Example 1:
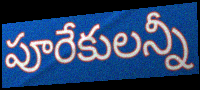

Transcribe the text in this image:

పూరేకులన్నీ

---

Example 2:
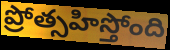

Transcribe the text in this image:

ప్రోత్సహిస్తోంది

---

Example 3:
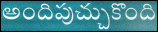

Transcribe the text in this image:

అందిపుచ్చుకొంది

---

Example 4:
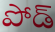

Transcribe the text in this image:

పోడ్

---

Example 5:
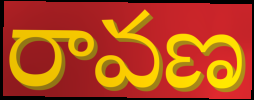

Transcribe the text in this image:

రావణ